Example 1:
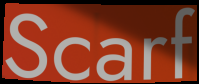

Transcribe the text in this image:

Scarf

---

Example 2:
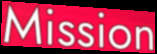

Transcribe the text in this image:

Mission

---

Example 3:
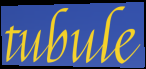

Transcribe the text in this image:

tubule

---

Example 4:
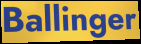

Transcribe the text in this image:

Ballinger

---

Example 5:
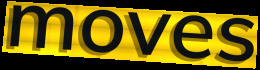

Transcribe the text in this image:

moves